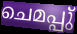
ചെമപ്പു്